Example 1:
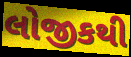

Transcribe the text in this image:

લોજીકથી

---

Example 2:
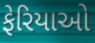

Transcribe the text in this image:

ફેરિયાઓ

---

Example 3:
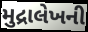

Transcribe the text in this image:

મુદ્રાલેખની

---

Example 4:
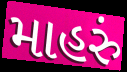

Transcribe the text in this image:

માહરું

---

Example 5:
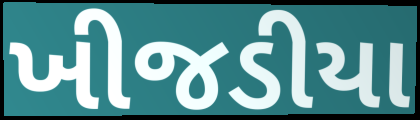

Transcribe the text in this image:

ખીજડીયા